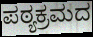
ಪಠ್ಯಕ್ರಮದ